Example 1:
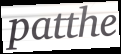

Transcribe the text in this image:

patthe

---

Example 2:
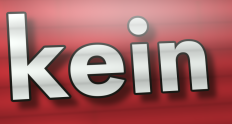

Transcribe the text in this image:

kein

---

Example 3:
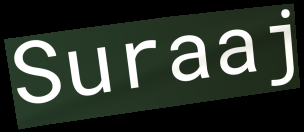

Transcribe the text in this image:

Suraaj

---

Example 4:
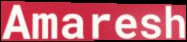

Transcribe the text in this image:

Amaresh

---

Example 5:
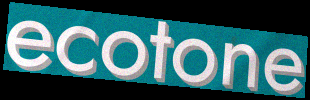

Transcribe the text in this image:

ecotone